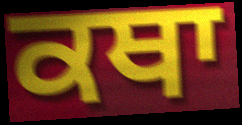
ਕਥਾ